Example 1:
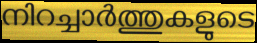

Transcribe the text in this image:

നിറച്ചാർത്തുകളുടെ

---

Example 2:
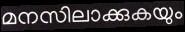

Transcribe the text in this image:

മനസിലാക്കുകയും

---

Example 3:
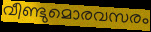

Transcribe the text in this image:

വീണ്ടുമൊരവസരം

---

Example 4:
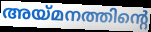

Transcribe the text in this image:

അയ്മനത്തിന്റെ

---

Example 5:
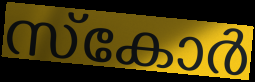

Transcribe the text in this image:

സ്‌കോർ